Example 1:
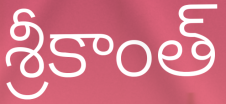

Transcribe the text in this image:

శ్రీకాంత్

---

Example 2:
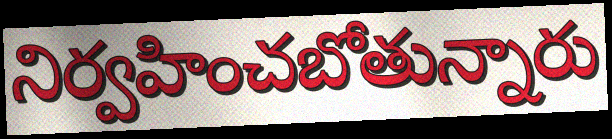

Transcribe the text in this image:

నిర్వహించబోతున్నారు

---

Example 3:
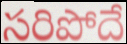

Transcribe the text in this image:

సరిపోదే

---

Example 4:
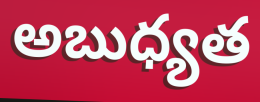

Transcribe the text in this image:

అబుధ్యత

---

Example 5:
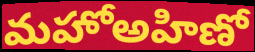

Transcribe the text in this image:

మహోఅహిణో